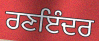
ਰਣਇੰਦਰ